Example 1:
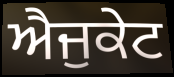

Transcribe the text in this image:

ਐਜੁਕੇਟ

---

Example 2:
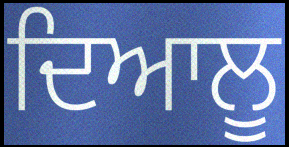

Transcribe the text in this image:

ਦਿਆਲੂ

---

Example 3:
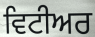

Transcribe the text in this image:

ਵਿਟੀਅਰ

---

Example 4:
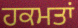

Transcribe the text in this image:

ਹਕਮਤਾਂ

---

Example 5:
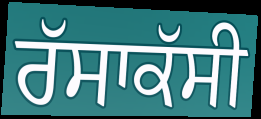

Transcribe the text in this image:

ਰੱਸਾਕੱਸੀ